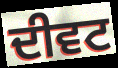
ਦੀਵਟ